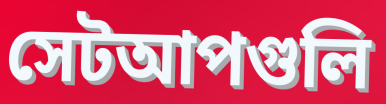
সেটআপগুলি